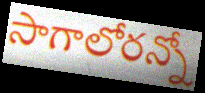
సాగాలోరన్నో